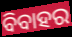
ବିବାହର